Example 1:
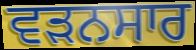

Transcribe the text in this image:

ਵੜਨਸਾਰ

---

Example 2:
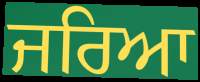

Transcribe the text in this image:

ਜਰਿਆ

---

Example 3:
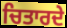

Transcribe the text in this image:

ਚਿਤਾਰਦੇ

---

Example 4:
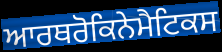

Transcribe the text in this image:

ਆਰਥਰੋਕਿਨੇਮੈਟਿਕਸ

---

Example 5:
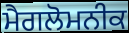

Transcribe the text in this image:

ਮੈਗਲੋਮਨੀਕ